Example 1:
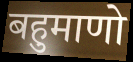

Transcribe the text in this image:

बहुमाणो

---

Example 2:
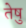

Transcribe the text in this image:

तेषु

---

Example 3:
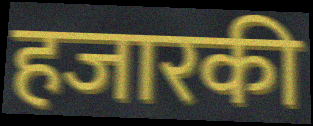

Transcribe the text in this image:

हजारकी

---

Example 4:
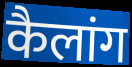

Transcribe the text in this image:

कैलांग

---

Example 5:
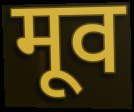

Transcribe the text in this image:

मूव